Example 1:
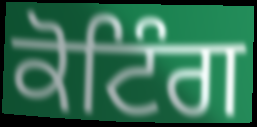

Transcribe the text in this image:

ਕੋਟਿੰਗ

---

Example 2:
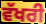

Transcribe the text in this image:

ਵੱਖਰੀ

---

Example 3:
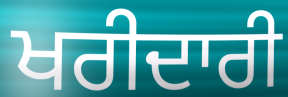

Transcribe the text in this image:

ਖਰੀਦਾਰੀ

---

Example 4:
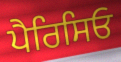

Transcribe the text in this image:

ਪੈਰਿਸਿਓ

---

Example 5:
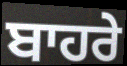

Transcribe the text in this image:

ਬਾਹਰੇ